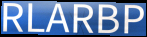
RLARBP